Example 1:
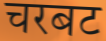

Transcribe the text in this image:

चरबट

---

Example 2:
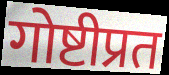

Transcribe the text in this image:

गोष्टीप्रत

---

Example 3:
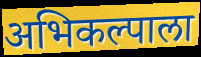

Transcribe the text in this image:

अभिकल्पाला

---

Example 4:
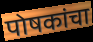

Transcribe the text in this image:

पोषकांचा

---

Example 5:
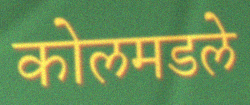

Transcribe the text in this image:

कोलमडले